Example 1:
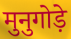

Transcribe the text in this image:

मुनुगोड़े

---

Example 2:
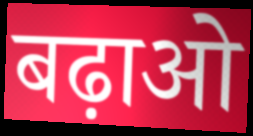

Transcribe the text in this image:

बढ़ाओ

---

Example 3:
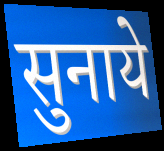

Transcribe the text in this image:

सुनाये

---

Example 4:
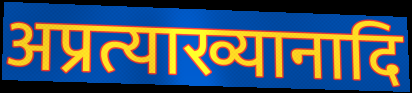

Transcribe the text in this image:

अप्रत्याख्यानादि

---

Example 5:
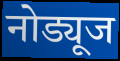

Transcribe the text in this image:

नोड्यूज